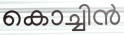
കൊച്ചിൻ